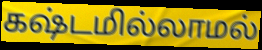
கஷ்டமில்லாமல்